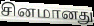
சினமானது